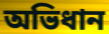
অভিধান